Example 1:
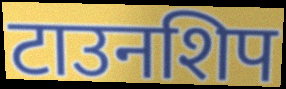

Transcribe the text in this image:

टाउनशिप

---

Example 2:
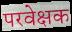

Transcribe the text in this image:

परवेक्षक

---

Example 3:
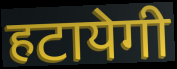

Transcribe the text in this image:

हटायेगी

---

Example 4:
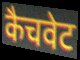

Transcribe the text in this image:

कैचवेट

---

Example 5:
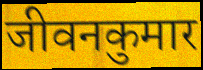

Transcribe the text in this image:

जीवनकुमार